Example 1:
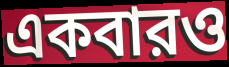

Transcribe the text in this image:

একবারও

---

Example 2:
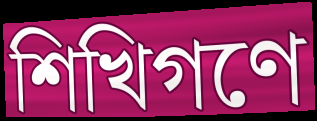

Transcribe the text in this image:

শিখিগণে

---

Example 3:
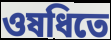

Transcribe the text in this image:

ওষধিতে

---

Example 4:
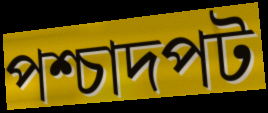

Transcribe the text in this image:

পশ্চাদপট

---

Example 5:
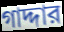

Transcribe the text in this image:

গাদ্দার